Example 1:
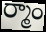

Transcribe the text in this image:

ర్మాం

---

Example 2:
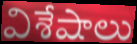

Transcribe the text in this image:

విశేషాలు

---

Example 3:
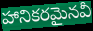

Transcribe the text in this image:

హానికరమైనవీ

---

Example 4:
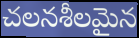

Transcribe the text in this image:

చలనశీలమైన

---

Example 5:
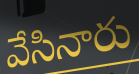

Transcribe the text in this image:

వేసినారు